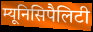
म्यूनिसिपैलिटी